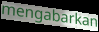
mengabarkan